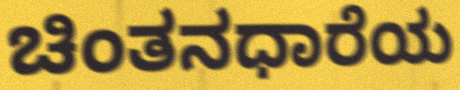
ಚಿಂತನಧಾರೆಯ